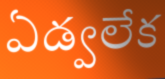
ఏడ్వలేక